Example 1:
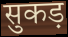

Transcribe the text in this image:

सुकड़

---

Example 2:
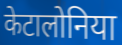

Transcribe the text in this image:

केटालोनिया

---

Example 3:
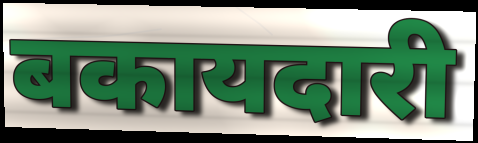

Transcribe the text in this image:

बकायदारी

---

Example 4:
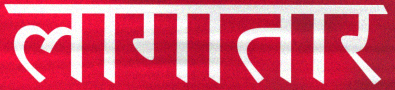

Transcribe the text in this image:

लागातार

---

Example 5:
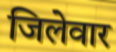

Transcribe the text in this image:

जिलेवार